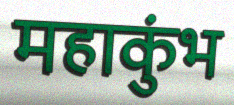
महाकुंभ